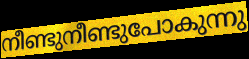
നീണ്ടുനീണ്ടുപോകുന്നു